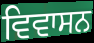
ਵਿਵਾਸਨ